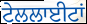
ਟੇਲਲਾਈਟਾਂ